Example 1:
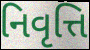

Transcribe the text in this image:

નિવૃત્તિ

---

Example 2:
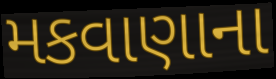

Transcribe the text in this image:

મકવાણાના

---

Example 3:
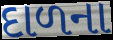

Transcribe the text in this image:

દાળના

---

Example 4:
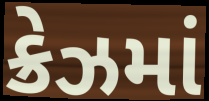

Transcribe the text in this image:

ક્રેઝમાં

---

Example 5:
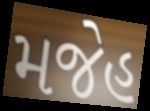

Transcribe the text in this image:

મજેહ